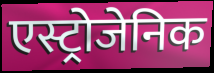
एस्ट्रोजेनिक